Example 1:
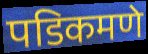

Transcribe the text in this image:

पडिकमणे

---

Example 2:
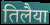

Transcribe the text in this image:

तिलैया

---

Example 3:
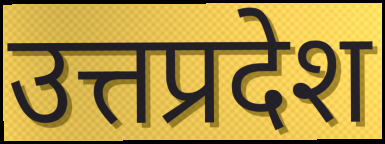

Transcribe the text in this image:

उत्तप्रदेश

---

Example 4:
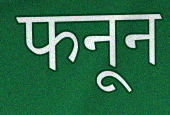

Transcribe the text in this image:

फनून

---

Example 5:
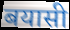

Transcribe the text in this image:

बयासी